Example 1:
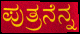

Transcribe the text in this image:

ಪುತ್ರನೆನ್ನ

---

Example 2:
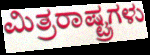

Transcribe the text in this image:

ಮಿತ್ರರಾಷ್ಟ್ರಗಳು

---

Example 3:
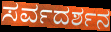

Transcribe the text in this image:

ಸರ್ವದರ್ಶನ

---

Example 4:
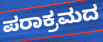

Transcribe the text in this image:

ಪರಾಕ್ರಮದ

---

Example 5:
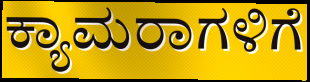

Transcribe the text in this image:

ಕ್ಯಾಮರಾಗಳಿಗೆ